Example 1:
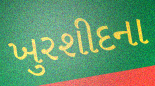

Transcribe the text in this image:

ખુરશીદના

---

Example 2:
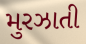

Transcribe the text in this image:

મુરઝાતી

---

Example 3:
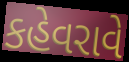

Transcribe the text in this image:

કહેવરાવે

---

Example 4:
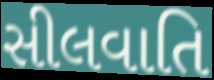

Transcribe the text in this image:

સીલવાતિ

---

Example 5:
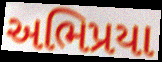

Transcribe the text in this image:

અભિપ્રયા